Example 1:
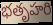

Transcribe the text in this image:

భతృహరి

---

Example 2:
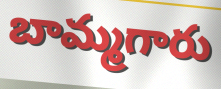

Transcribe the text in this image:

బామ్మగారు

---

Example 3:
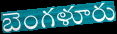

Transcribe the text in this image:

బెంగళూరు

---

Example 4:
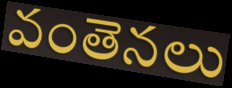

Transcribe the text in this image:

వంతెనలు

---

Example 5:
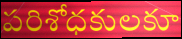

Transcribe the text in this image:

పరిశోధకులకూ